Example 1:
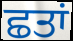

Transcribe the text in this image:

ਛਤਾਂ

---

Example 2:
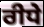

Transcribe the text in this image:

ਰੀਧੇ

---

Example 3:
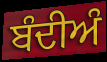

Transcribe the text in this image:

ਬੰਦੀਅੰ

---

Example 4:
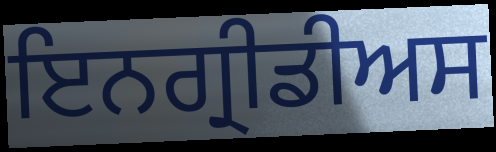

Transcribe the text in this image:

ਇਨਗ੍ਰੀਡੀਅਸ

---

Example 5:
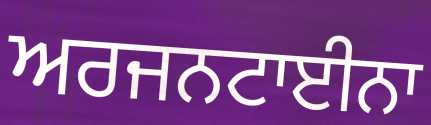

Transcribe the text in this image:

ਅਰਜਨਟਾਈਨਾ